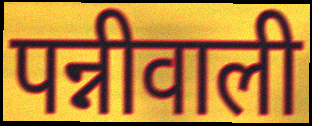
पन्नीवाली